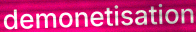
demonetisation